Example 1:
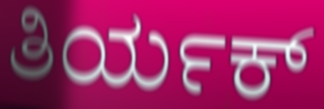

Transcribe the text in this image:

ತಿರ್ಯಕ್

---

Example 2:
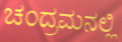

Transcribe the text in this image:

ಚಂದ್ರಮನಲ್ಲಿ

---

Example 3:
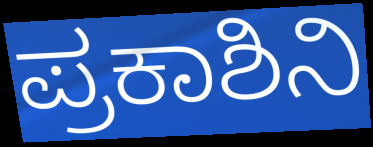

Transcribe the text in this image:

ಪ್ರಕಾಶಿನಿ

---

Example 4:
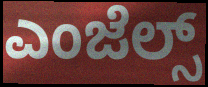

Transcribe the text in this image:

ಎಂಜೆಲ್ಸ್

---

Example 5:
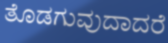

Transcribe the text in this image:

ತೊಡಗುವುದಾದರೆ